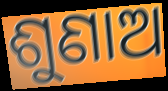
ଶୁଣାଅ